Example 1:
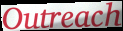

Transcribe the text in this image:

Outreach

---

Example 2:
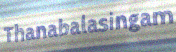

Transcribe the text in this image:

Thanabalasingam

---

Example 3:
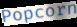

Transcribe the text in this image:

Popcorn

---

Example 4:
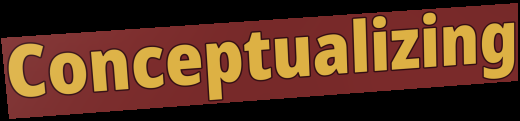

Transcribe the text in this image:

Conceptualizing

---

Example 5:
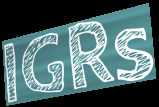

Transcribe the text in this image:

IGRs